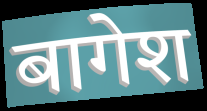
बागेश